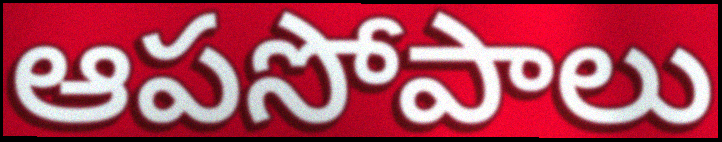
ఆపసోపాలు